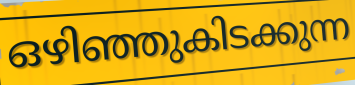
ഒഴിഞ്ഞുകിടക്കുന്ന